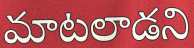
మాటలాడని